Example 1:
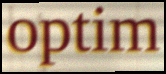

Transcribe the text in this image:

optim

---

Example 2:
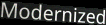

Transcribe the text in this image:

Modernized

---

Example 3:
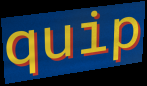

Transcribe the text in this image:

quip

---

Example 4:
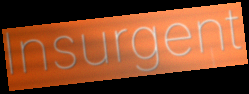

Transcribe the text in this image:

Insurgent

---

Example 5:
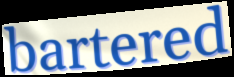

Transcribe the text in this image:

bartered